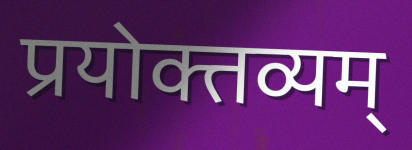
प्रयोक्तव्यम्